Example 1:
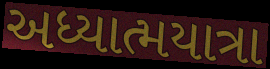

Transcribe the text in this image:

અધ્યાત્મયાત્રા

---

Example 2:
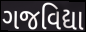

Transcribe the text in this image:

ગજવિદ્યા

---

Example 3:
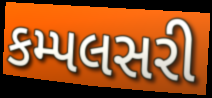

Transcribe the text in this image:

કમ્પલસરી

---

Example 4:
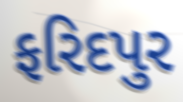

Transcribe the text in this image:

ફરિદપુર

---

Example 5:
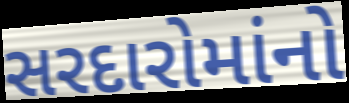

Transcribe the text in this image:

સરદારોમાંનો